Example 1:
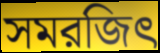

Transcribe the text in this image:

সমরজিৎ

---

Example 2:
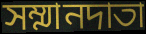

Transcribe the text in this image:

সম্মানদাতা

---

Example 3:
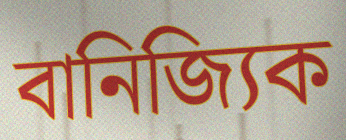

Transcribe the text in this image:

বানিজ্যিক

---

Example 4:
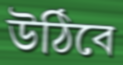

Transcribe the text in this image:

উঠিবে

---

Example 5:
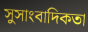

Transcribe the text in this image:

সুসাংবাদিকতা